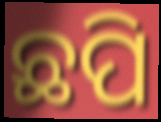
ଛପି